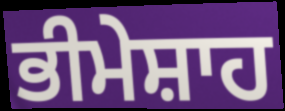
ਭੀਮੇਸ਼ਾਹ